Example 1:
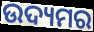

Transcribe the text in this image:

ଉଦ୍ୟମର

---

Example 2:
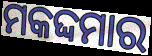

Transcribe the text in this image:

ମକଦ୍ଦମାର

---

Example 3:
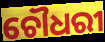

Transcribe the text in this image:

ଚୌଧରୀ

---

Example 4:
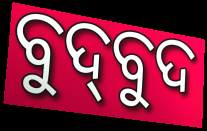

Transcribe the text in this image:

ବୁଦ୍‍ବୁଦ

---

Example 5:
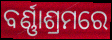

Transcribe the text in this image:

ବର୍ଣ୍ଣାଶ୍ରମରେ